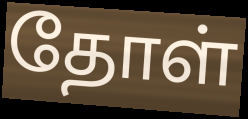
தோள்